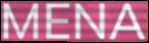
MENA